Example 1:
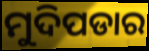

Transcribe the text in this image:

ମୁଦିପଡାର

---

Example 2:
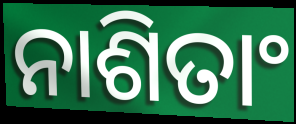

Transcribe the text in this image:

ନାଶିତାଂ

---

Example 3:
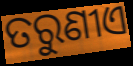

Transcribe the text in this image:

ତରୁଣୀଏ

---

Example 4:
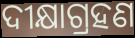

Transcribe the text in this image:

ଦୀକ୍ଷାଗ୍ରହଣ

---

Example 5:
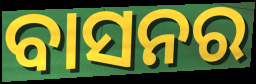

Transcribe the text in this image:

ବାସନର